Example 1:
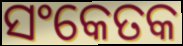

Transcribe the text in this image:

ସଂକେତକ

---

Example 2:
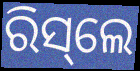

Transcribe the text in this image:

ରିସ୍‌ଲେ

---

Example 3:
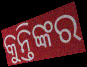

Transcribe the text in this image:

କୁନ୍ତିଙ୍କର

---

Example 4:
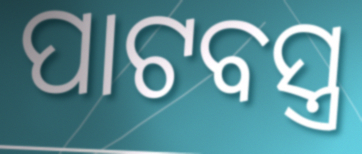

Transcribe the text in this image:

ପାଟବସ୍ତ୍ର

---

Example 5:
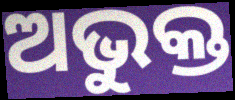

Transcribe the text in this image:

ଅଭୁକ୍ତ